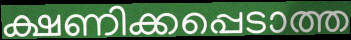
ക്ഷണിക്കപ്പെടാത്ത